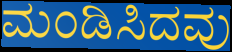
ಮಂಡಿಸಿದವು